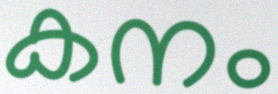
കനം